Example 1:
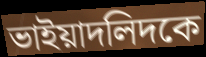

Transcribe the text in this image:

ভাইয়াদলিদকে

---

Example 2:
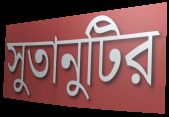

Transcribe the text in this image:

সুতানুটির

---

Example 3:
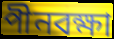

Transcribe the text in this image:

পীনবক্ষা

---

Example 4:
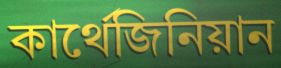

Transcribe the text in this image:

কার্থেজিনিয়ান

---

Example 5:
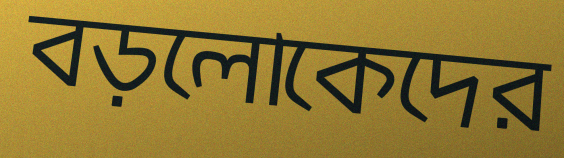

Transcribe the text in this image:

বড়লোকেদের